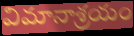
విమానాశ్రయం